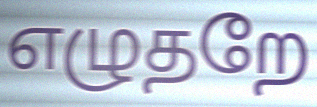
எழுதறே